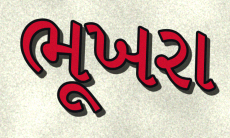
ભૂખરા